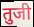
तुजी